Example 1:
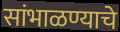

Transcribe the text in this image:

सांभाळण्याचे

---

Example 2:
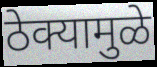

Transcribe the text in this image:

ठेक्यामुळे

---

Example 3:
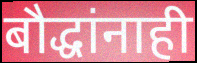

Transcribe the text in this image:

बौद्धांनाही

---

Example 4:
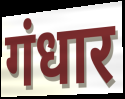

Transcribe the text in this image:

गंधार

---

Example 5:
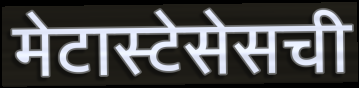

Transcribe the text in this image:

मेटास्टेसेसची